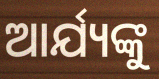
ଆର୍ଯ୍ୟଙ୍କୁ